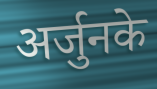
अर्जुनके